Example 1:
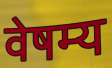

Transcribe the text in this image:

वेषम्य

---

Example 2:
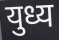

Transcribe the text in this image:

युध्य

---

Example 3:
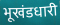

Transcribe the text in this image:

भूखंडधारी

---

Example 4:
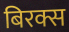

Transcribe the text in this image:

बिरक्स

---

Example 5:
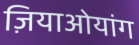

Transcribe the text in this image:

ज़ियाओयांग